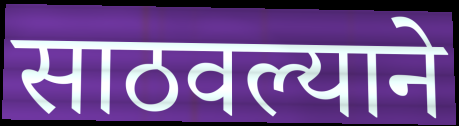
साठवल्याने